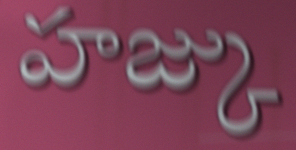
హజ్కు